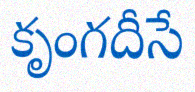
కృంగదీసే